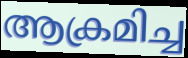
ആക്രമിച്ച